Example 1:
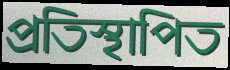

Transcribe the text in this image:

প্রতিস্থাপিত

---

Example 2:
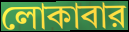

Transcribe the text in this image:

লোকাবার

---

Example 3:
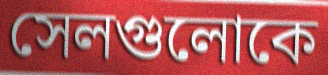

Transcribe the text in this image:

সেলগুলোকে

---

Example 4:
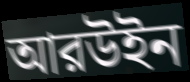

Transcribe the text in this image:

আরউইন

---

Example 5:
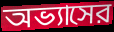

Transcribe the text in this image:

অভ্যাসের